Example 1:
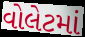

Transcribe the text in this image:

વોલેટમાં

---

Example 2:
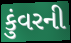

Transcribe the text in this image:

કુંવરની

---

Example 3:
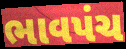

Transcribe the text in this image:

ભાવપંચ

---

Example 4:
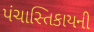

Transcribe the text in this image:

પંચાસ્તિકાયની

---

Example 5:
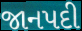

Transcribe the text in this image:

જાનપદી